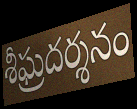
శీఘ్రదర్శనం